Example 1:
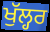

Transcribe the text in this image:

ਖੁੱਲ੍ਹਰ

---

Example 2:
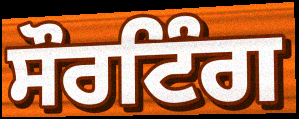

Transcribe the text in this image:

ਸੌਰਟਿੰਗ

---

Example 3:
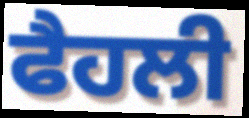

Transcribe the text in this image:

ਫੈਹਲੀ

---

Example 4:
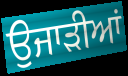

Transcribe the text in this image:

ਉਜਾੜੀਆਂ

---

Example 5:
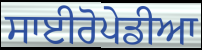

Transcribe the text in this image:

ਸਾਈਰੋਪੇਡੀਆ